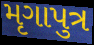
મૃગાપુત્ર